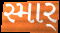
સ્માર્